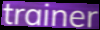
trainer